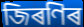
জিৰণিৰ